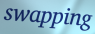
swapping